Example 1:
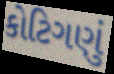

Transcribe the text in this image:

કોટિગણું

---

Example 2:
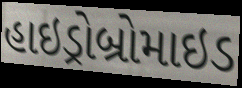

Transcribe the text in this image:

હાઇડ્રોબ્રોમાઇડ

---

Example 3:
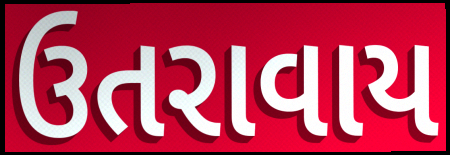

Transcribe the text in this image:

ઉતરાવાય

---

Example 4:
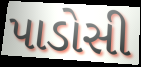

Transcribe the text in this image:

પાડોસી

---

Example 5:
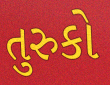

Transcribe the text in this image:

તુરુકો